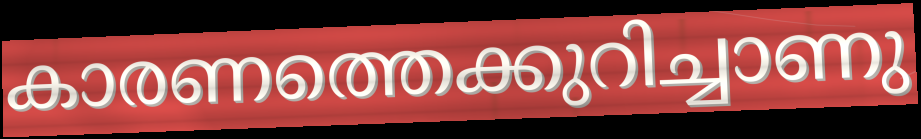
കാരണത്തെക്കുറിച്ചാണു